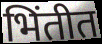
भिंतीत